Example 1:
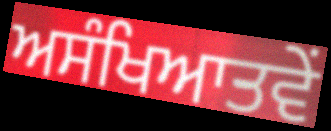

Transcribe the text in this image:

ਅਸੰਖਿਆਤਵੇਂ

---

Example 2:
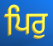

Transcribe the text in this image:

ਪਿਰੁ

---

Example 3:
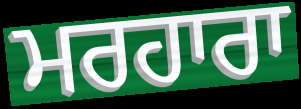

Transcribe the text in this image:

ਮਰਹਾਰਾ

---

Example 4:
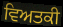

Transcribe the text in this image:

ਵਿਅਤਕੀ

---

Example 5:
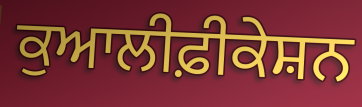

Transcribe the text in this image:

ਕੁਆਲੀਫ਼ੀਕੇਸ਼ਨ